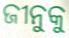
ଜୀନୁକୁ